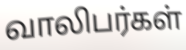
வாலிபர்கள்